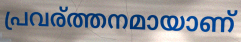
പ്രവര്ത്തനമായാണ്